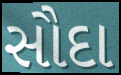
સૌદા